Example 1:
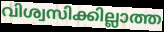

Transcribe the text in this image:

വിശ്വസിക്കില്ലാത്ത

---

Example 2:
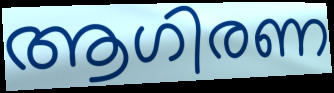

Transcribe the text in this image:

ആഗിരണ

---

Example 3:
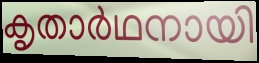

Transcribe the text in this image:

കൃതാർഥനായി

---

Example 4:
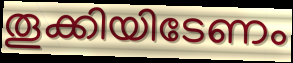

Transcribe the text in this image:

തൂക്കിയിടേണം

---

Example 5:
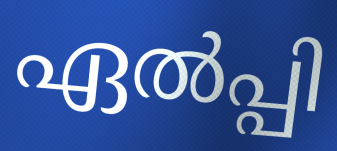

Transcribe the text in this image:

ഏൽപ്പി